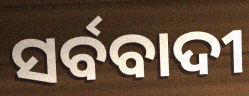
ସର୍ବବାଦୀ